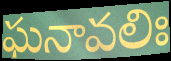
ఘనావలిః